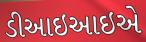
ડીઆઇઆઇએ